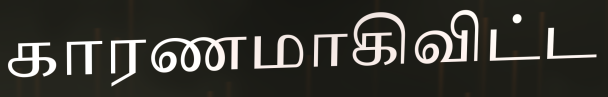
காரணமாகிவிட்ட